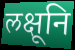
लक्षूनि